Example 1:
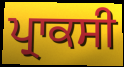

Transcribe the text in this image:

ਪ੍ਰਾਕਸੀ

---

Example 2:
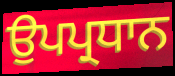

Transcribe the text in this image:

ਉਪਪ੍ਰਧਾਨ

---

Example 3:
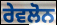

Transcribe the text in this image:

ਰੇਵਲੋਨ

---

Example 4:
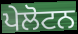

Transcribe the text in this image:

ਪੇਲੋਟਨ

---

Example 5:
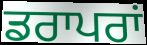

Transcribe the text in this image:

ਡਰਾਪਰਾਂ